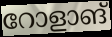
റോളാങ്